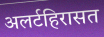
अलर्टहिरासत